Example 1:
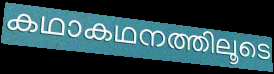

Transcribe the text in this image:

കഥാകഥനത്തിലൂടെ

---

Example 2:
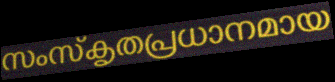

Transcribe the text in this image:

സംസ്‌കൃതപ്രധാനമായ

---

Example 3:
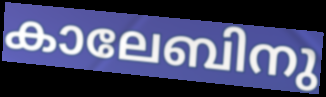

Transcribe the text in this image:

കാലേബിനു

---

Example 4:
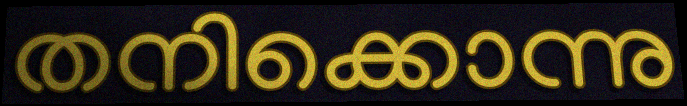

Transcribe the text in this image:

തനിക്കൊന്നു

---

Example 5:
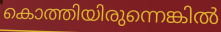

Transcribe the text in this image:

കൊത്തിയിരുന്നെങ്കിൽ